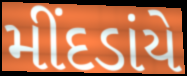
મીંદડાંયે